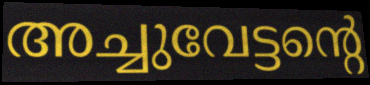
അച്ചുവേട്ടന്റെ